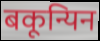
बकून्यिन